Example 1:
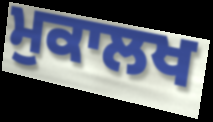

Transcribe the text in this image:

ਮੁਕਾਲਖ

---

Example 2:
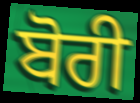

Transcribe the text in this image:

ਬੋਰੀ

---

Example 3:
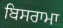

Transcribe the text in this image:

ਬਿਸਰਾਮਾ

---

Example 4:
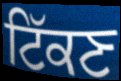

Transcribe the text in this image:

ਟਿੱਕਣ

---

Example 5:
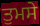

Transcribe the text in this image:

ਤੁਮਸੇ